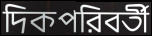
দিকপরিবর্তী